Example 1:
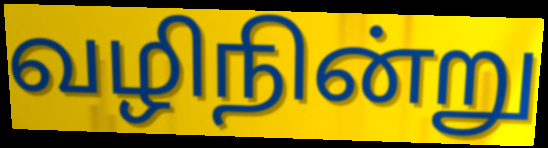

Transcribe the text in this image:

வழிநின்று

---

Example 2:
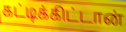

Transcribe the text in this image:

கட்டிக்கிட்டான்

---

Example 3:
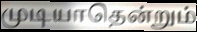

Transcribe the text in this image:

முடியாதென்றும்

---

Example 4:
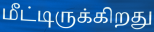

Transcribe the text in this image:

மீட்டிருக்கிறது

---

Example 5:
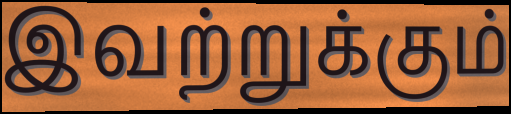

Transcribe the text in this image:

இவற்றுக்கும்